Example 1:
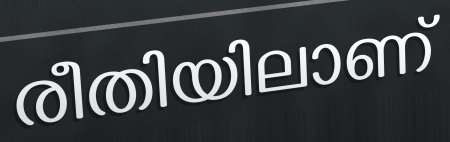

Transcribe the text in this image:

രീതിയിലാണ്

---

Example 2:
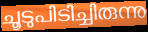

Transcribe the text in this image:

ചൂടുപിടിച്ചിരുന്നു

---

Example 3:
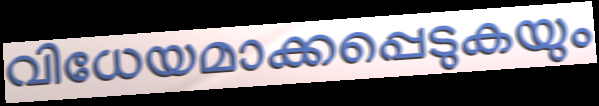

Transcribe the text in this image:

വിധേയമാക്കപ്പെടുകയും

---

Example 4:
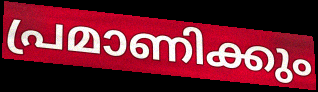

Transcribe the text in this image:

പ്രമാണിക്കും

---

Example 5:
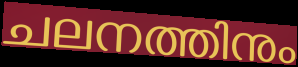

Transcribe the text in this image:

ചലനത്തിനും